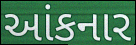
આંકનાર